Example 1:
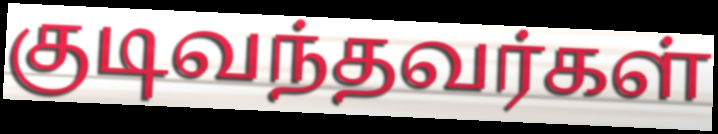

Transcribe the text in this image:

குடிவந்தவர்கள்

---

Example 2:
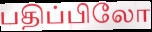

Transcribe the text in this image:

பதிப்பிலோ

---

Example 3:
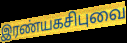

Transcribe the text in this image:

இரண்யகசிபுவை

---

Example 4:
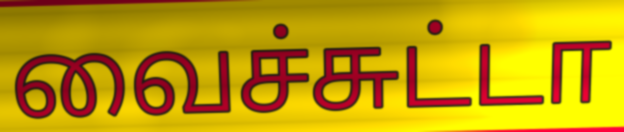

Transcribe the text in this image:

வைச்சுட்டா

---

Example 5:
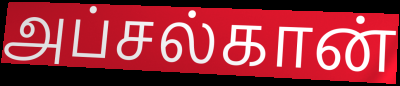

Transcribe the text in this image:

அப்சல்கான்